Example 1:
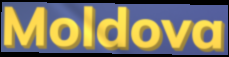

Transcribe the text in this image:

Moldova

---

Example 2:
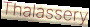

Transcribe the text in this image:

Thalassery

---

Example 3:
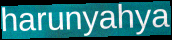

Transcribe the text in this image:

harunyahya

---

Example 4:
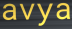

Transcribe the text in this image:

avya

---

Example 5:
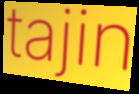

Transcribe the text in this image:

tajin